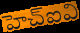
హెచ్ఐవి